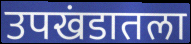
उपखंडातला